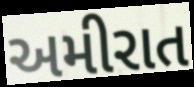
અમીરાત